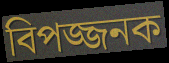
বিপজ্জনক